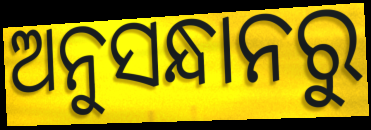
ଅନୁସନ୍ଧାନରୁ